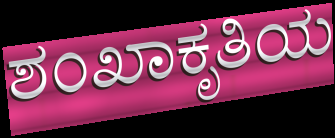
ಶಂಖಾಕೃತಿಯ